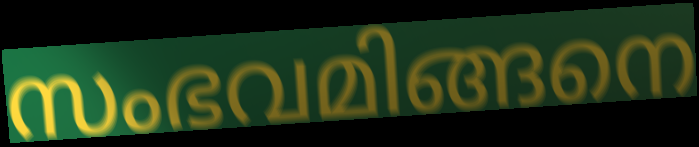
സംഭവമിങ്ങനെ